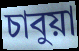
চাবুয়া